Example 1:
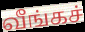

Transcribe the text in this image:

வீங்கச்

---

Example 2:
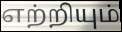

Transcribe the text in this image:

எற்றியும்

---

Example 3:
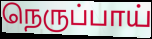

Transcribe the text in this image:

நெருப்பாய்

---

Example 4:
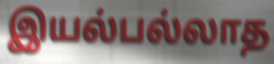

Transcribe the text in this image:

இயல்பல்லாத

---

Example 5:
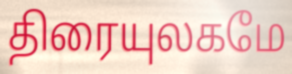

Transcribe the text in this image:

திரையுலகமே